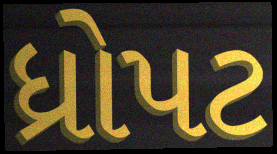
ધ્રોપટ